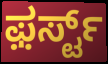
ಫ಼ರ್ಸ್ಟ್